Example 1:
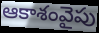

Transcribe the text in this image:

ఆకాశంవైపు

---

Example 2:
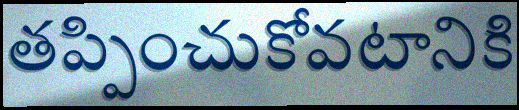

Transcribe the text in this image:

తప్పించుకోవటానికి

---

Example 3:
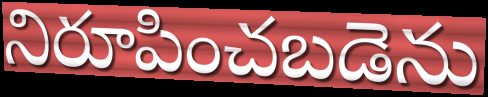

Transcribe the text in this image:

నిరూపించబడెను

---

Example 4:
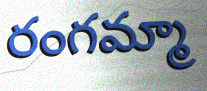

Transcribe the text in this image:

రంగమ్మా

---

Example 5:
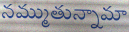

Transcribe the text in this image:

నమ్ముతున్నామా